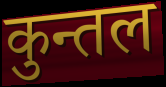
कुन्तल